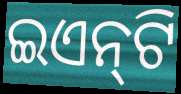
ଇଏନ୍‌ଟି